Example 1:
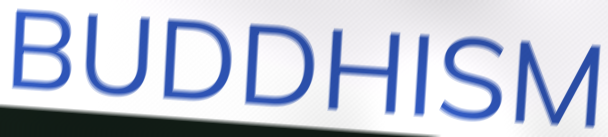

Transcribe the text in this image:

BUDDHISM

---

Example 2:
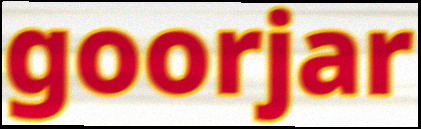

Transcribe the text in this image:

goorjar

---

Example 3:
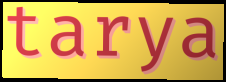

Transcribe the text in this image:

tarya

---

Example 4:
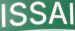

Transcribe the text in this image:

ISSAI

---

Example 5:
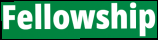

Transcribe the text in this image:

Fellowship